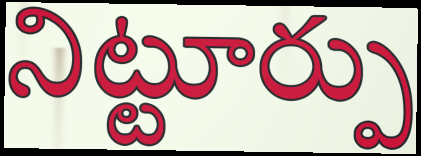
నిట్టూర్పు